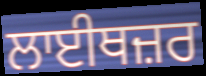
ਲਾਈਥਜ਼ਰ